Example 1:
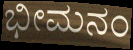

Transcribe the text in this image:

ಭೀಮನಂ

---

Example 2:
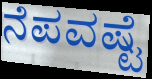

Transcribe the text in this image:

ನೆಪವಷ್ಟೆ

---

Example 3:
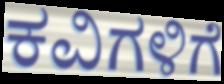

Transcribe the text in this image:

ಕವಿಗಳಿಗೆ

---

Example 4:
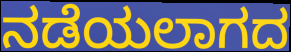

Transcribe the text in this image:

ನಡೆಯಲಾಗದ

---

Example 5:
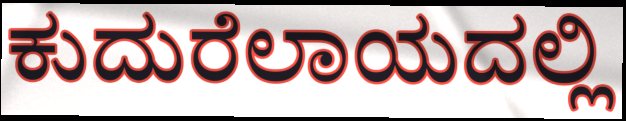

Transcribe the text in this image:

ಕುದುರೆಲಾಯದಲ್ಲಿ